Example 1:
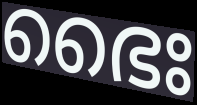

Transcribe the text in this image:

ഭൈഃ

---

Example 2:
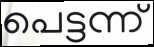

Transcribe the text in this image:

പെട്ടന്ന്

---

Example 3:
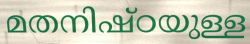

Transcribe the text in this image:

മതനിഷ്ഠയുള്ള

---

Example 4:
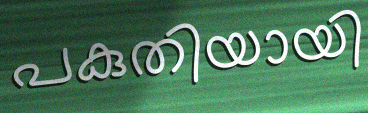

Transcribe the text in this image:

പകുതിയായി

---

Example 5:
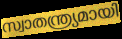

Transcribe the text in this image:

സ്വാതന്ത്ര്യമായി